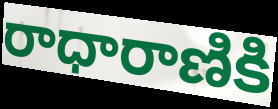
రాధారాణికి